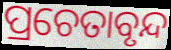
ପ୍ରଚେତାବୃନ୍ଦ